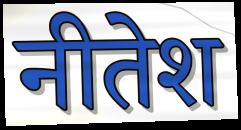
नीतेश